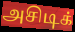
அசிடிக்